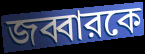
জব্বারকে